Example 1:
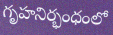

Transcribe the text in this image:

గృహనిర్భంధంలో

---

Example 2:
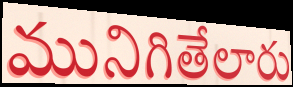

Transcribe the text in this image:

మునిగితేలారు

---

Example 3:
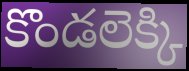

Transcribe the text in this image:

కొండలెక్కి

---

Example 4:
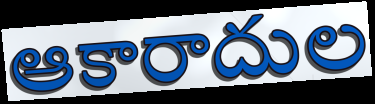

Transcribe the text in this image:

ఆకారాదుల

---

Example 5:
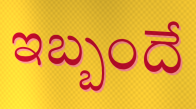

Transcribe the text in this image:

ఇబ్బందే